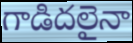
గాడిదలైనా